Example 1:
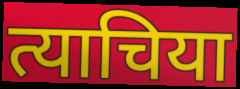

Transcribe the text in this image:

त्याचिया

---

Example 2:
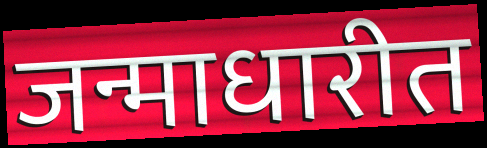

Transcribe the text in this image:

जन्माधारीत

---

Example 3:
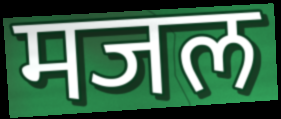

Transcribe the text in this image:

मजल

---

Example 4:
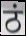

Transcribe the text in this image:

ठं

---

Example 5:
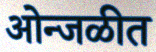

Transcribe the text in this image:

ओन्जळीत